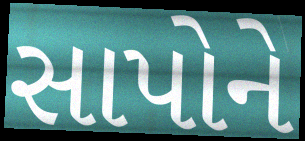
સાપોને